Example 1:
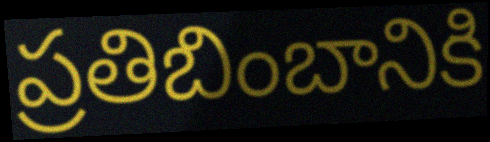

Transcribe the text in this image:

ప్రతిబింబానికి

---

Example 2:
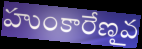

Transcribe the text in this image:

హుంకారేణౖవ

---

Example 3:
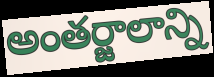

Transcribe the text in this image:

అంతర్జాలాన్ని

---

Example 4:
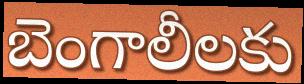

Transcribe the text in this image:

బెంగాలీలకు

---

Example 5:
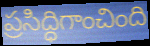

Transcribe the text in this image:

ప్రసిద్ధిగాంచింది